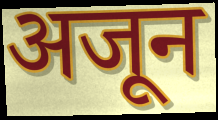
अजून